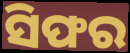
ସିଫର